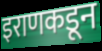
इराणकडून